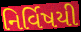
નિર્વિષયી